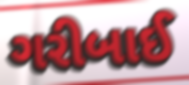
ગરીબાઈ